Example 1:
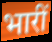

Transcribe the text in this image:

भारीं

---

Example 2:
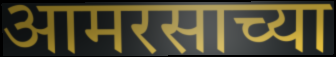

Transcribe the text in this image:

आमरसाच्या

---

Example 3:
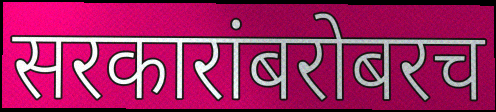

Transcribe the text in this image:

सरकारांबरोबरच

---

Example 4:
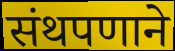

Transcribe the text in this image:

संथपणाने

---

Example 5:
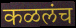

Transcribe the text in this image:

कळलंच